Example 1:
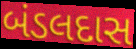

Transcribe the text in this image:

બંડલદાસ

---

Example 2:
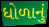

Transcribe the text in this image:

ધોળાનું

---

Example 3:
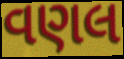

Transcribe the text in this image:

વણલ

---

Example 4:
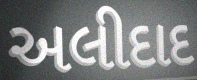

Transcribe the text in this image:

અલીદાદ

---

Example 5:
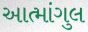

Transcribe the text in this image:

આત્માંગુલ